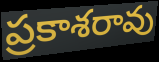
ప్రకాశరావు